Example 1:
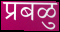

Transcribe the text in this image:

प्रबळु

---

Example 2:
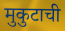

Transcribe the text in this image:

मुकुटाची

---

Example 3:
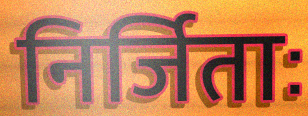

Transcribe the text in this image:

निर्जिताः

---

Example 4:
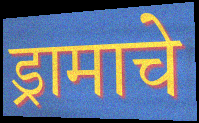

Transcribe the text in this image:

ड्रामाचे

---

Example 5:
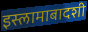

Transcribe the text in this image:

इस्लामाबादशी